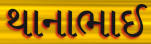
થાનાભાઈ